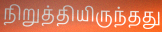
நிறுத்தியிருந்தது